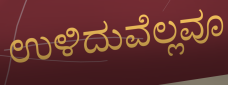
ಉಳಿದುವೆಲ್ಲವೂ